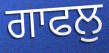
ਗਾਫਲੁ